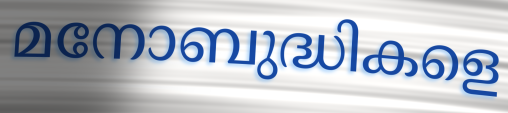
മനോബുദ്ധികളെ